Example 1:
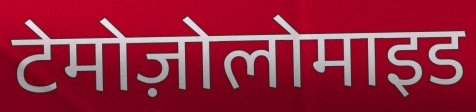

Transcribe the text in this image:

टेमोज़ोलोमाइड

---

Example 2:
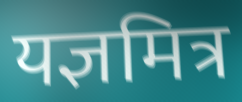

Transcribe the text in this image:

यज्ञमित्र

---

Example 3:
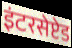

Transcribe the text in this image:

इंटरसेप्टेड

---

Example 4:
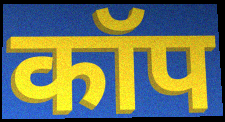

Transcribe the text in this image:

कॉप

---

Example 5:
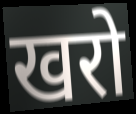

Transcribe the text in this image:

खरो